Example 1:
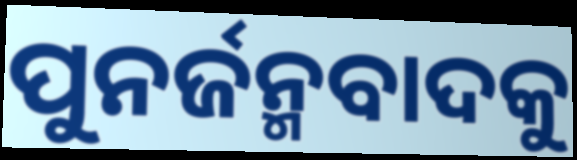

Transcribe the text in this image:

ପୁନର୍ଜନ୍ମବାଦକୁ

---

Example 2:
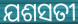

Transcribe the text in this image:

ଯଶସତୀ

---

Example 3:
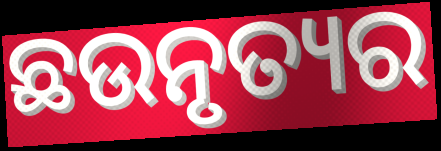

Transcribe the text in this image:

ଛଉନୃତ୍ୟର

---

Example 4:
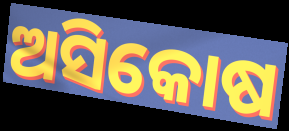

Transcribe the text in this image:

ଅସିକୋଷ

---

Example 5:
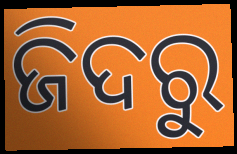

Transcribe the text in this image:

ଜିଦରୁ